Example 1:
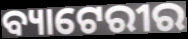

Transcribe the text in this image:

ବ୍ୟାଟେରୀର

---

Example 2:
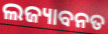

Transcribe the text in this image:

ଲଜ୍ୟାବନତ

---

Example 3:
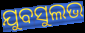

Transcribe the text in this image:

ଯୁବସୁଲଭ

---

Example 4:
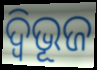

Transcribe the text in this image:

ଦ୍ବିଭୂଜ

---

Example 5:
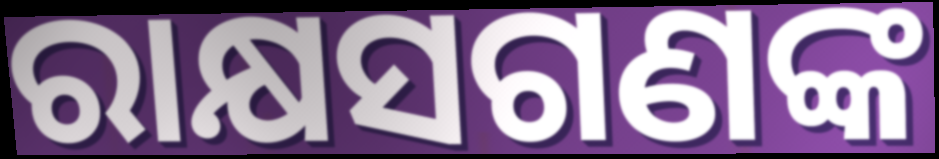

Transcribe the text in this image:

ରାକ୍ଷସଗଣଙ୍କ